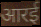
आरई